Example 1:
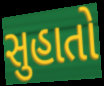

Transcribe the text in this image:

સુહાતો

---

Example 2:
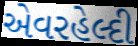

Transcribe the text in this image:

એવરહેલ્દી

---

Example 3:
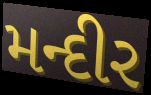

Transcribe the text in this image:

મન્દીર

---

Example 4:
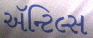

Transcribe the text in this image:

ઍન્ટિલ્સ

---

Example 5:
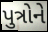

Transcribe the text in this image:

પુત્રોને